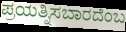
ಪ್ರಯತ್ನಿಸಬಾರದೆಂಬ